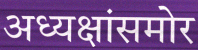
अध्यक्षांसमोर